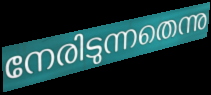
നേരിടുന്നതെന്നു